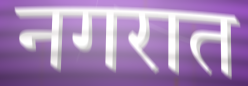
नगरात